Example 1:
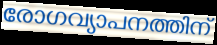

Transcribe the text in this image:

രോഗവ്യാപനത്തിന്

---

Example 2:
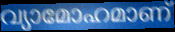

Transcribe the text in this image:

വ്യാമോഹമാണ്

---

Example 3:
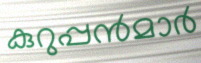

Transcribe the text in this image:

കുറുപ്പൻമാർ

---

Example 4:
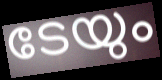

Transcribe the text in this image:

ടേയും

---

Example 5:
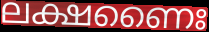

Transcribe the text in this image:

ലക്ഷണൈഃ